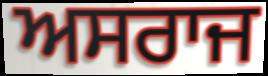
ਅਸਰਾਜ